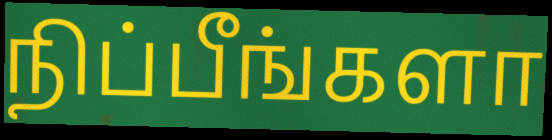
நிப்பீங்களா